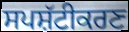
ਸਪਸ਼ੱਟੀਕਰਣ